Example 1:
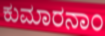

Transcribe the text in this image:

ಕುಮಾರನಾಂ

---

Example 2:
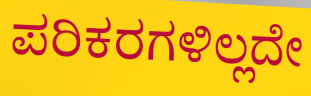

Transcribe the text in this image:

ಪರಿಕರಗಳಿಲ್ಲದೇ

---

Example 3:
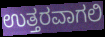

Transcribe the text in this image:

ಉತ್ತರವಾಗಲಿ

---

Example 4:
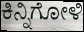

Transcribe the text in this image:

ಕಿನ್ನಿಗೋಳಿ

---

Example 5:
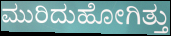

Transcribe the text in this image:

ಮುರಿದುಹೋಗಿತ್ತು